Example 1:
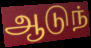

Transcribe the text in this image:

ஆடுந்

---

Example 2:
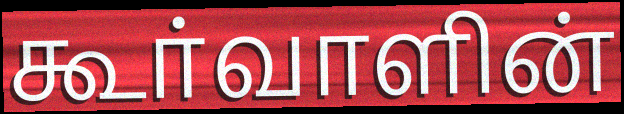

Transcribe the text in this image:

கூர்வாளின்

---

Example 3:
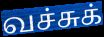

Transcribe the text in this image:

வச்சுக்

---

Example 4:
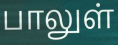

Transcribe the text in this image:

பாலுள்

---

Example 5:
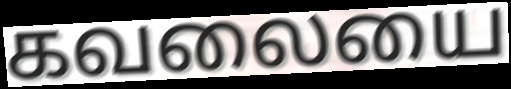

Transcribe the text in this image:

கவலையை